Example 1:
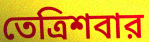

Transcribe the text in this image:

তেত্রিশবার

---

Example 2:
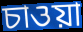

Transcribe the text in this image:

চাওয়া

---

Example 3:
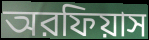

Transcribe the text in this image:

অরফিয়াস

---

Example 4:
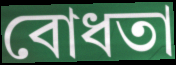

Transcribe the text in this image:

বোধতা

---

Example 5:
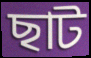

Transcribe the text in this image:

ছাট